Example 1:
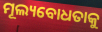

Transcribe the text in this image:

ମୂଲ୍ୟବୋଧତାକୁ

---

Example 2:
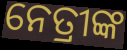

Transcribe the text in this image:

ନେତ୍ରୀଙ୍କ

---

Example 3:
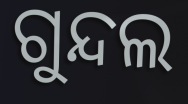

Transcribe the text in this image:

ଗୁନ୍ଦଲ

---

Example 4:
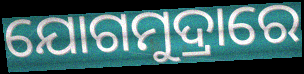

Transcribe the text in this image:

ଯୋଗମୁଦ୍ରାରେ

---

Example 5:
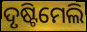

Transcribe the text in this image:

ଦୃଷ୍ଟିମେଲି